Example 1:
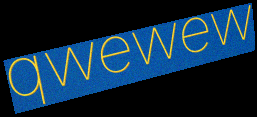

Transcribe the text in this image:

qwewew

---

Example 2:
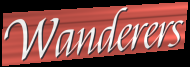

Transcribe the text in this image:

Wanderers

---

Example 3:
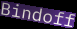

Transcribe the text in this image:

Bindoff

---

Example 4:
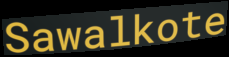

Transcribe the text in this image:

Sawalkote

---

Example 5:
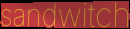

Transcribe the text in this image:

sandwitch